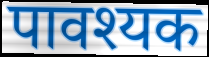
पावश्यक